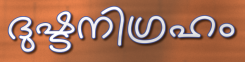
ദുഷ്ടനിഗ്രഹം